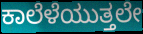
ಕಾಲೆಳೆಯುತ್ತಲೇ